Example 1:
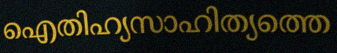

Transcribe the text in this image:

ഐതിഹ്യസാഹിത്യത്തെ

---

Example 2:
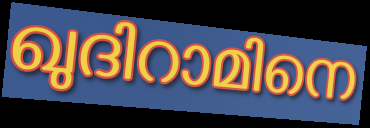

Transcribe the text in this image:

ഖുദിറാമിനെ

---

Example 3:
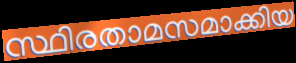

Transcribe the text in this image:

സ്ഥിരതാമസമാക്കിയ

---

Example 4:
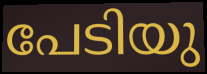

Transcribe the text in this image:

പേടിയു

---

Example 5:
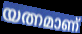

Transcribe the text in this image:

യത്നമാണ്